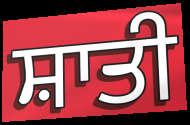
ਸ਼ਾਤੀ